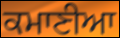
ਕਮਾਣੀਆ